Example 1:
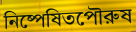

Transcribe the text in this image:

নিষ্পেষিতপৌরুষ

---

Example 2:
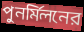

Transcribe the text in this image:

পুনর্মিলনের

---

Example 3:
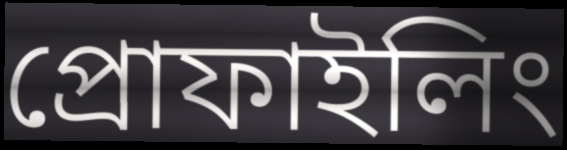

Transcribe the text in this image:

প্রোফাইলিং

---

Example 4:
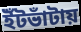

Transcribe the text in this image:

ইঁটভাঁটায়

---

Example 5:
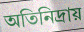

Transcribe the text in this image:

অতিনিদ্রায়